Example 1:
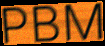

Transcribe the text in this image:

PBM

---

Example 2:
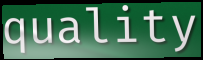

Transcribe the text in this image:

quality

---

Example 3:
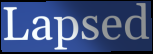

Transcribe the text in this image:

Lapsed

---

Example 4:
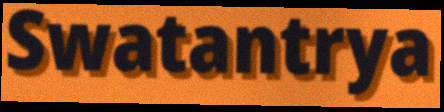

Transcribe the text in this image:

Swatantrya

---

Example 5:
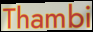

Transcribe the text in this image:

Thambi